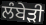
ਲੰਬੇੜੀ